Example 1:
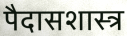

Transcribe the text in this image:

पैदासशास्त्र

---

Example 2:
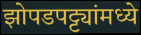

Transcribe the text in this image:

झोपडपट्ट्यांमध्ये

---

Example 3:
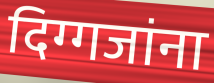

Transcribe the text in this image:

दिग्गजांना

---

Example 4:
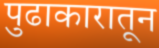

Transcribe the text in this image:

पुढाकारातून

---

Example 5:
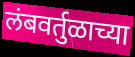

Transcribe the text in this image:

लंबवर्तुळाच्या